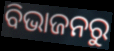
ବିଭାଜନରୁ